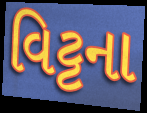
વિટ્ટના